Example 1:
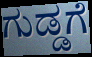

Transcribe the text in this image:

ಗುಡ್ಡಗೆ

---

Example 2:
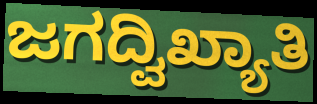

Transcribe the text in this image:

ಜಗದ್ವಿಖ್ಯಾತಿ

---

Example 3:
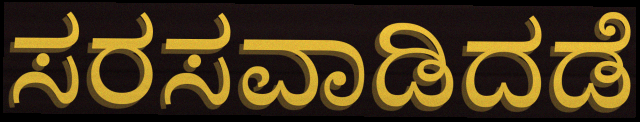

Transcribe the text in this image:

ಸರಸವಾಡಿದಡೆ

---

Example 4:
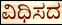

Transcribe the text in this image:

ವಿಧಿಸದ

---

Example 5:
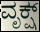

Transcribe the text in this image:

ವೃಕ್ಷ್